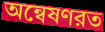
অন্বেষণরত